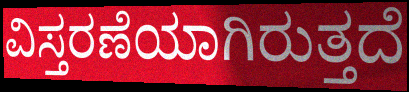
ವಿಸ್ತರಣೆಯಾಗಿರುತ್ತದೆ